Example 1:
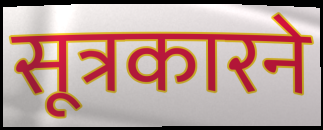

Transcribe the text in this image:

सूत्रकारने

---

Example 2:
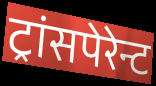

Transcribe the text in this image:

ट्रांसपेरेन्ट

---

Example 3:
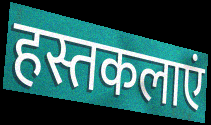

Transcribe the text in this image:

हस्तकलाएं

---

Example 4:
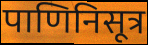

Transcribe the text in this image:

पाणिनिसूत्र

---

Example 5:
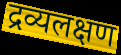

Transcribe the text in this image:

द्रव्यलक्षण